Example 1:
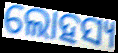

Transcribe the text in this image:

ଲୋହସ୍ୟ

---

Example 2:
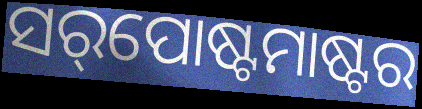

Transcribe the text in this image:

ସର୍‌ପୋଷ୍ଟମାଷ୍ଟର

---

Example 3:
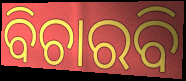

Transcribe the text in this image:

ବିଚାରବି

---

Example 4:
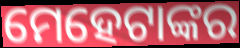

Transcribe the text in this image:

ମେହେଟାଙ୍କର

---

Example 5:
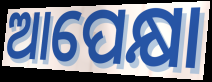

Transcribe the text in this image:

ଆପେକ୍ଷା